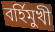
বৰ্হিমুখী